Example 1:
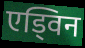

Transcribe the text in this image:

एड्विन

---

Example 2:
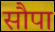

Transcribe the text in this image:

सौपा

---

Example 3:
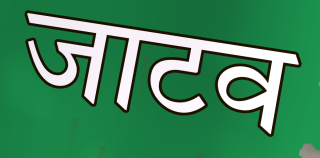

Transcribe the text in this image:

जाटव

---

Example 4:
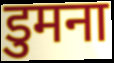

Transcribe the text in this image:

डुमना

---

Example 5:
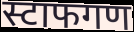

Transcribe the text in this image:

स्टाफगण